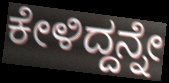
ಕೇಳಿದ್ದನ್ನೇ